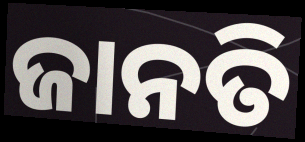
ଜାନତି